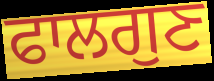
ਫਾਲਗੁਣ